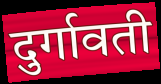
दुर्गावती